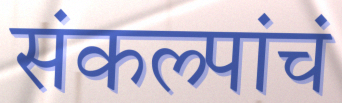
संकल्पांचं